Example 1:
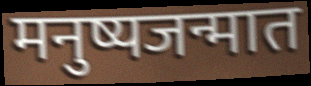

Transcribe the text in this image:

मनुष्यजन्मात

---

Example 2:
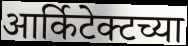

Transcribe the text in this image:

आर्किटेक्टच्या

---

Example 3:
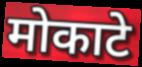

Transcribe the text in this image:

मोकाटे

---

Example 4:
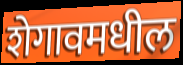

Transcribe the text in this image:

शेगावमधील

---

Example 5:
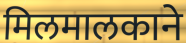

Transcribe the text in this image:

मिलमालकाने